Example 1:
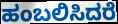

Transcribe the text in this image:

ಹಂಬಲಿಸಿದರೆ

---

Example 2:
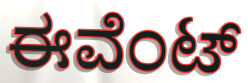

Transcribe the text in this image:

ಈವೆಂಟ್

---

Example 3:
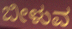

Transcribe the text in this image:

ಬೀಳುವ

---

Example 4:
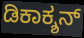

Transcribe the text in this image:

ಡಿಕಾಕ್ಶನ್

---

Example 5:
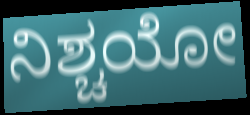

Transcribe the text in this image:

ನಿಶ್ಚಯೋ